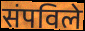
संपविले